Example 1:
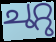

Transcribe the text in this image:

ചുറ്റു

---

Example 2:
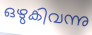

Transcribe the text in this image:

ഒഴുകിവന്നു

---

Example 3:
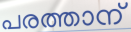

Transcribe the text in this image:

പരത്താന്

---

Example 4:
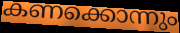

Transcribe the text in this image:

കണക്കൊന്നും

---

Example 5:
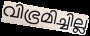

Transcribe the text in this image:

വിഭ്രമിച്ചില്ല